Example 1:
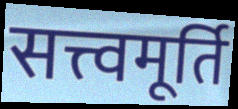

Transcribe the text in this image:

सत्त्वमूर्ति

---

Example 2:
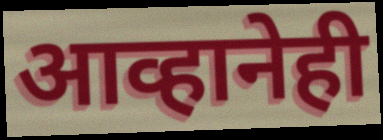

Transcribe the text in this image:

आव्हानेही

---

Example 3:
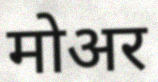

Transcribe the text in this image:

मोअर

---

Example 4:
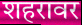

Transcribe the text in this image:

शहरावर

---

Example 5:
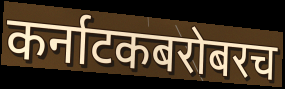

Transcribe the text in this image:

कर्नाटकबरोबरच